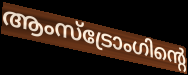
ആംസ്ട്രോംഗിന്റെ